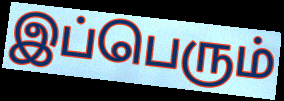
இப்பெரும்